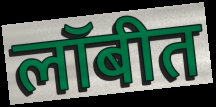
लॉबीत